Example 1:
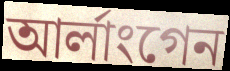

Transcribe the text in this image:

আৰ্লাংগেন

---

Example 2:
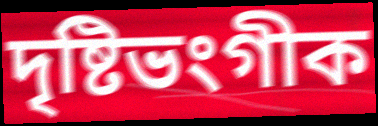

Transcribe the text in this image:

দৃষ্টিভংগীক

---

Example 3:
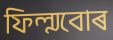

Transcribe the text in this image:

ফিল্মবোৰ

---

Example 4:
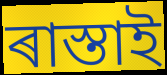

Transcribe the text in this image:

ৰাস্তাই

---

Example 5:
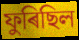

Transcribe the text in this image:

ফুৰিছিল